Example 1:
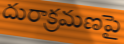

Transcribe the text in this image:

దురాక్రమణపై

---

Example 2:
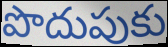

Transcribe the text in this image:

పొదుపుకు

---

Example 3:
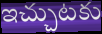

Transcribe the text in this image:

ఇచ్చుటకు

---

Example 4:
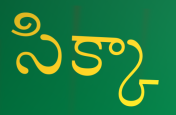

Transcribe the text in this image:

సిక్కా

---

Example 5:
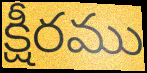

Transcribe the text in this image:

క్షీరము